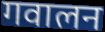
गवालन